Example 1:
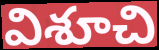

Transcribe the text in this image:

విశూచి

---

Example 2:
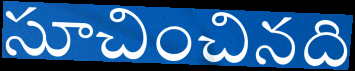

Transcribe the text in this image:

సూచించినది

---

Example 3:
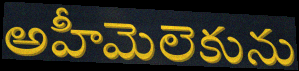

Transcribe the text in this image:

అహీమెలెకును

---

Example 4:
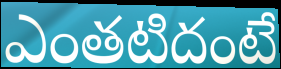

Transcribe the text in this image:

ఎంతటిదంటే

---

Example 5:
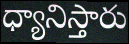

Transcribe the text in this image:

ధ్యానిస్తారు